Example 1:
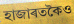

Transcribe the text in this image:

হাজাৰতকৈও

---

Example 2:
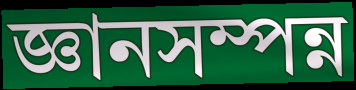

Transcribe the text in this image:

জ্ঞানসম্পন্ন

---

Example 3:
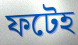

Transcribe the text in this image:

ফটেহ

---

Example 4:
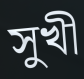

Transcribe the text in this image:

সুখী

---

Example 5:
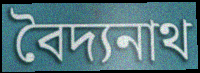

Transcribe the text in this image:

বৈদ্যনাথ